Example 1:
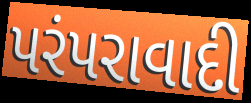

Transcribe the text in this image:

પરંપરાવાદી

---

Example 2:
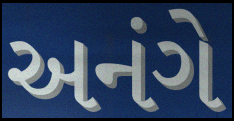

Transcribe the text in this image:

અનંગે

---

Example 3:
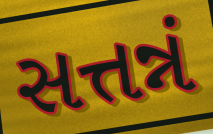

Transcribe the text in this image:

સત્તન્નં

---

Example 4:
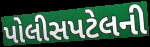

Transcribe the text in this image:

પોલીસપટેલની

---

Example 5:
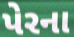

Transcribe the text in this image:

પેરના